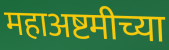
महाअष्टमीच्या